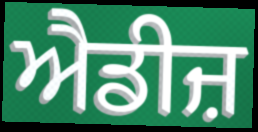
ਐਡੀਜ਼